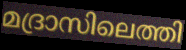
മദ്രാസിലെത്തി